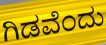
ಗಿಡವೆಂದು